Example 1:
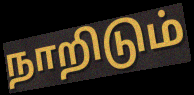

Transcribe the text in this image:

நாறிடும்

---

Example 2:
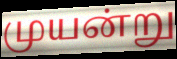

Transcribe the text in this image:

முயன்று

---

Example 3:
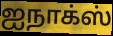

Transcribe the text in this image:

ஐநாக்ஸ்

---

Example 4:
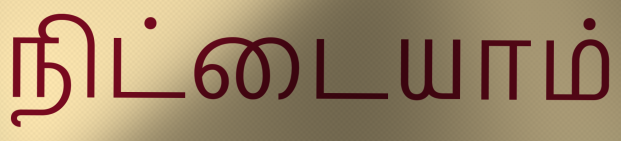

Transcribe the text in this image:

நிட்டையாம்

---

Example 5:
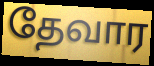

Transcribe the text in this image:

தேவார